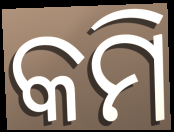
କମି